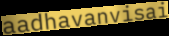
aadhavanvisai